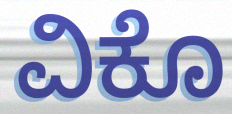
ವಿಕೊ